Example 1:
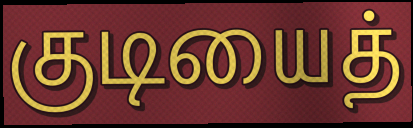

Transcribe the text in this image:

குடியைத்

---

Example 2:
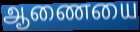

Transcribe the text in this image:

ஆணையை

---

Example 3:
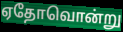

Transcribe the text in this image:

ஏதோவொன்று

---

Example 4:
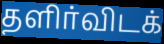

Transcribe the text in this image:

தளிர்விடக்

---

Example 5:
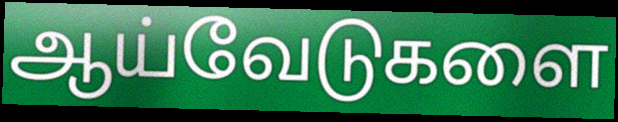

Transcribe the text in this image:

ஆய்வேடுகளை